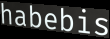
habebis